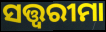
ସତ୍ତ୍ୱରୀମା